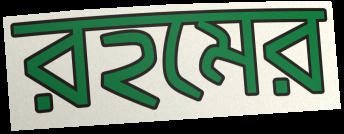
রহমের